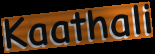
Kaathali